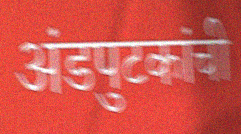
अंडपुटकांची